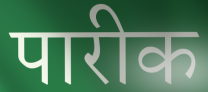
पारीक